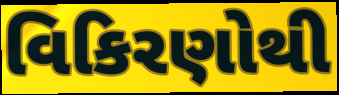
વિકિરણોથી